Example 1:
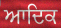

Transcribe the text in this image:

ਆਦਿਕ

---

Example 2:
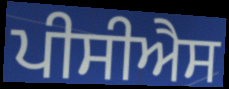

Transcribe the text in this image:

ਪੀਸੀਐਸ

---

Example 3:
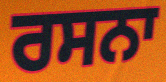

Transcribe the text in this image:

ਰਸਨਾ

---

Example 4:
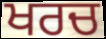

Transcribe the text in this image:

ਖਰਚ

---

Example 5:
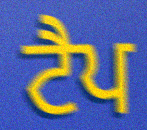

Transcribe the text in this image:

ਟੈਪ